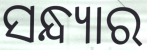
ସନ୍ଧ୍ୟାର